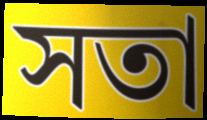
সতা